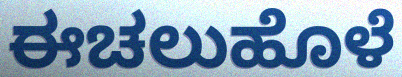
ಈಚಲುಹೊಳೆ